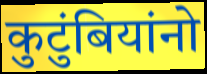
कुटुंबियांनो